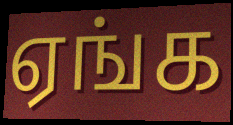
ஏங்க